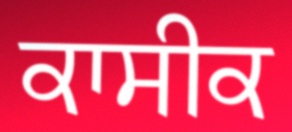
ਕਾਸੀਕ